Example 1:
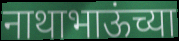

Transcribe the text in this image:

नाथाभाऊंच्या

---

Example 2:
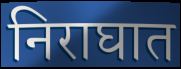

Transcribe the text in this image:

निराघात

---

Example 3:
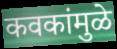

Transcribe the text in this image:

कवकांमुळे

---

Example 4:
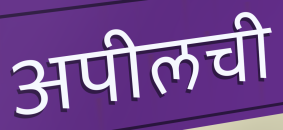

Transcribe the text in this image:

अपीलची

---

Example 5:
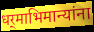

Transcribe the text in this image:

धर्माभिमान्यांना